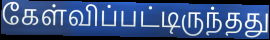
கேள்விப்பட்டிருந்தது